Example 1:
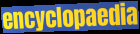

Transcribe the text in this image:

encyclopaedia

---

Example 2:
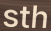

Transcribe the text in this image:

sth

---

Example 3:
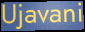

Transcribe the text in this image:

Ujavani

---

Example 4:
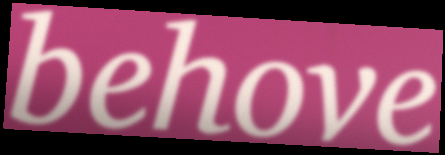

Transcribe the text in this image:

behove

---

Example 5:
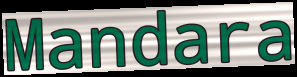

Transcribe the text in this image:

Mandara